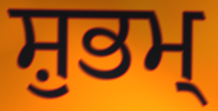
ਸ਼ੁਭਮ੍